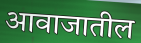
आवाजातील